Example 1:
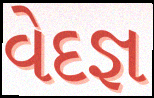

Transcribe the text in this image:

વેદજ્ઞ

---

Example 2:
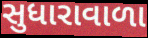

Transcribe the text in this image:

સુધારાવાળા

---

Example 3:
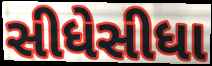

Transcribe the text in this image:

સીધેસીધા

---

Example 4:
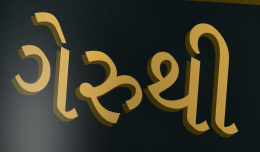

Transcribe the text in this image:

ગેરુથી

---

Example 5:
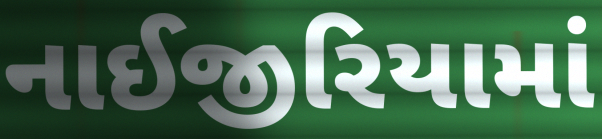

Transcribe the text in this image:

નાઈજીરિયામાં